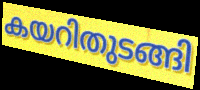
കയറിതുടങ്ങി